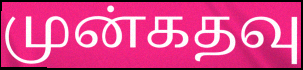
முன்கதவு